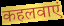
कहलवाएं